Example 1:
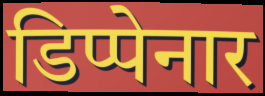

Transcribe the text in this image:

डिप्पेनार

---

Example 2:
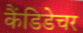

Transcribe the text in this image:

कैंडिडेचर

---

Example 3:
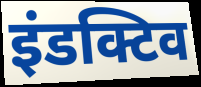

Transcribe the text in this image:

इंडक्टिव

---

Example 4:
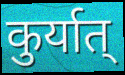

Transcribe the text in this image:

कुर्यात्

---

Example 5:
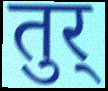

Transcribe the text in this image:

तुर्